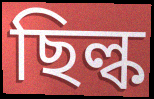
ছিল্ক